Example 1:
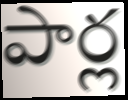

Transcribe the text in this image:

పార్ల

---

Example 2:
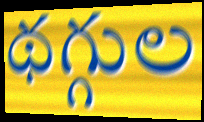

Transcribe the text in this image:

థగ్గుల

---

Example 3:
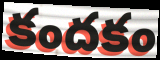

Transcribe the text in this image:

కందకం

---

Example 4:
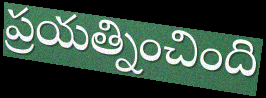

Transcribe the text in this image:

ప్రయత్నించింది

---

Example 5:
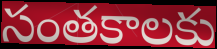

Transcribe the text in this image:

సంతకాలకు